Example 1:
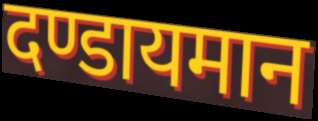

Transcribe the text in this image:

दण्डायमान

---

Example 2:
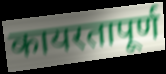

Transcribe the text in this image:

कायरतापूर्ण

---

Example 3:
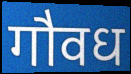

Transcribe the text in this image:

गौवध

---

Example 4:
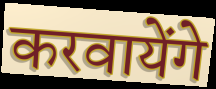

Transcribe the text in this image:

करवायेंगे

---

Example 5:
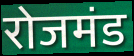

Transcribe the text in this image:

रोजमंड